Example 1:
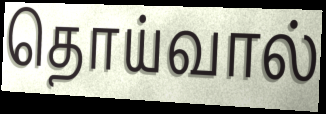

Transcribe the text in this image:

தொய்வால்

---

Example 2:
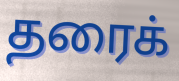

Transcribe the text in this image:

தரைக்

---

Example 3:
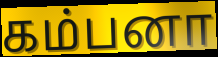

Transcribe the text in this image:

கம்பனா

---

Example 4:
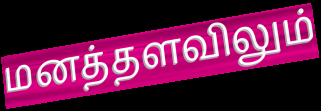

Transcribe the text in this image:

மனத்தளவிலும்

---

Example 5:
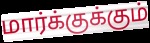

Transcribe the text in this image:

மார்க்குக்கும்